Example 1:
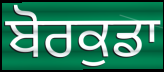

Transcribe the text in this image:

ਬੋਰਕੁਡਾ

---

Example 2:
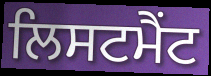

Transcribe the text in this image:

ਲਿਸਟਮੈਂਟ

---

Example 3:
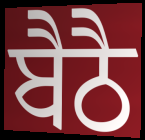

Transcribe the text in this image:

ਬੈਠੈ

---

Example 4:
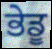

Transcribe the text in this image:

ਭੇਡੂ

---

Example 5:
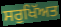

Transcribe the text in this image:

ਸਰੁਖਿੱਅਤ